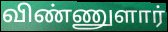
விண்ணுளார்